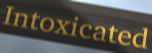
Intoxicated